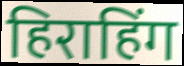
हिराहिंग